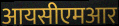
आयसीएमआर